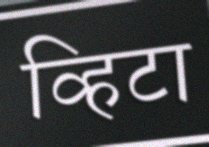
व्हिटा